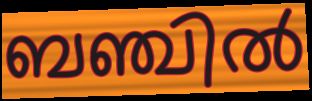
ബഞ്ചിൽ